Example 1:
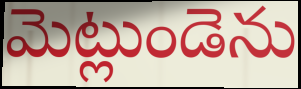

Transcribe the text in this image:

మెట్లుండెను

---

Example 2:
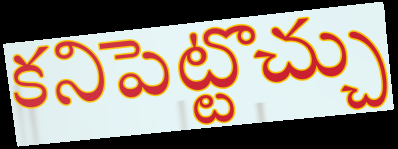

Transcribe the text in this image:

కనిపెట్టొచ్చు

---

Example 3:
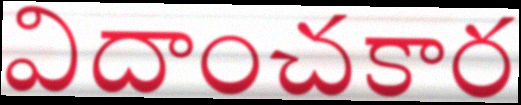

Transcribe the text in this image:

విదాంచకార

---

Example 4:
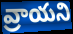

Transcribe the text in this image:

వ్రాయని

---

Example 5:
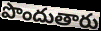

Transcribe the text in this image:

పొందుతారు